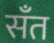
सँत